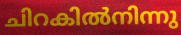
ചിറകിൽനിന്നു